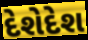
દેશેદેશ